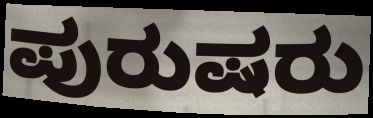
ಪುರುಷರು